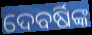
ଦେବର୍ଷିଙ୍କ